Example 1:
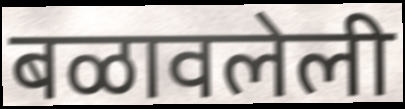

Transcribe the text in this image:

बळावलेली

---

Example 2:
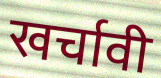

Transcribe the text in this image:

खर्चावी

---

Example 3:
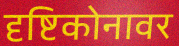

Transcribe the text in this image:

दृष्टिकोनावर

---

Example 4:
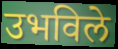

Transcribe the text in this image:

उभविले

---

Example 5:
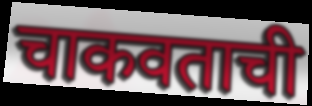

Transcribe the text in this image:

चाकवताची